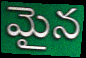
మైన